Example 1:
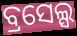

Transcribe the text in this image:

ବ୍ରସେଲ୍ସ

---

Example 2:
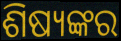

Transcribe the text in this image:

ଶିଷ୍ୟଙ୍କର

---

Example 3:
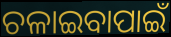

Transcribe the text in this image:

ଚଳାଇବାପାଇଁ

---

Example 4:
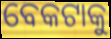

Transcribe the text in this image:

ବେକଟାକୁ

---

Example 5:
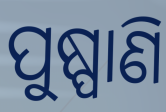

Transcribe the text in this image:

ପୁଷ୍ପାଣି